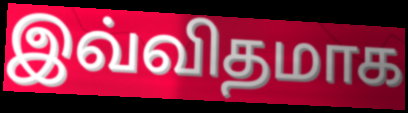
இவ்விதமாக